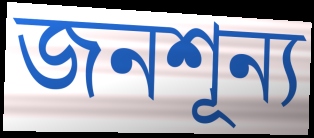
জনশূন্য